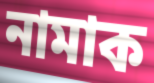
নামাক